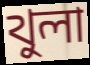
থুলা